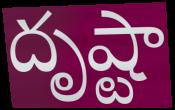
దృష్టా